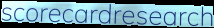
scorecardresearch